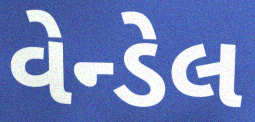
વેન્ડેલ